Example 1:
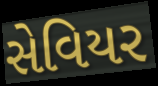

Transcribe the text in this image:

સેવિયર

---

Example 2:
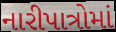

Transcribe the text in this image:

નારીપાત્રોમાં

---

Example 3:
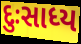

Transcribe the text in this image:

દુઃસાધ્ય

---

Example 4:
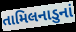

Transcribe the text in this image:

તામિલનાડુનાં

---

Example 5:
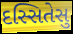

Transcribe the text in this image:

દસ્સિતેસુ